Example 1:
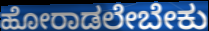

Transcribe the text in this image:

ಹೋರಾಡಲೇಬೇಕು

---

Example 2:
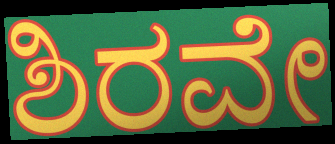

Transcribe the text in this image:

ಶಿರವೇ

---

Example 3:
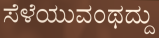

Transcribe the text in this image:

ಸೆಳೆಯುವಂಥದ್ದು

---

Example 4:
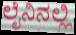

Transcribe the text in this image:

ಲೈನಿನಲ್ಲಿ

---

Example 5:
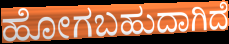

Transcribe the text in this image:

ಹೋಗಬಹುದಾಗಿದೆ